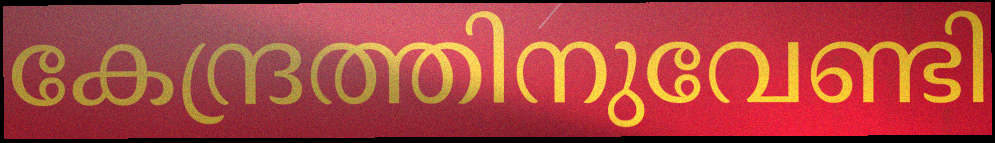
കേന്ദ്രത്തിനുവേണ്ടി